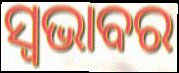
ସ୍ୱଭାବର